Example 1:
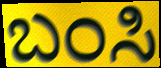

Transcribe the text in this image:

ಬಂಸಿ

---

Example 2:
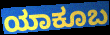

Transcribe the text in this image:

ಯಾಕೂಬ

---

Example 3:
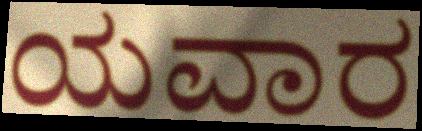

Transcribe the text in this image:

ಯವಾರ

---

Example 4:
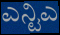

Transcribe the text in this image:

ಎನ್ಟಿಎ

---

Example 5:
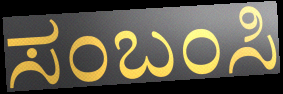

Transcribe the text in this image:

ಸಂಬಂಸಿ